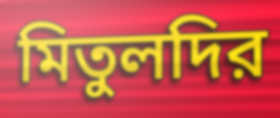
মিতুলদির